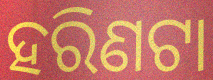
ହରିଣଟା